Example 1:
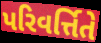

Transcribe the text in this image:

પરિવર્ત્તિતે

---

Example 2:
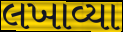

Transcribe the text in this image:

લખાવ્યા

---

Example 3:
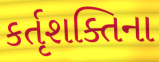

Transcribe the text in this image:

કર્તૃશક્તિના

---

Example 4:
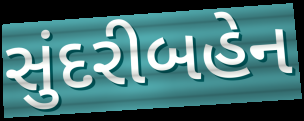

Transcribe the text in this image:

સુંદરીબહેન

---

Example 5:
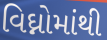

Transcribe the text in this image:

વિઘ્નોમાંથી